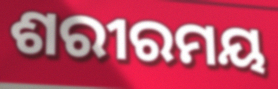
ଶରୀରମୟ